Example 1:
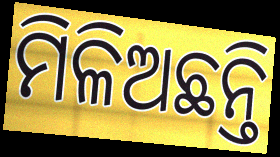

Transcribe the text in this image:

ମିଳିଅଛନ୍ତି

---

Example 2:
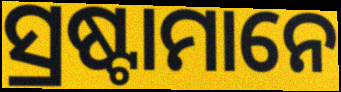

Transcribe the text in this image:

ସ୍ରଷ୍ଟାମାନେ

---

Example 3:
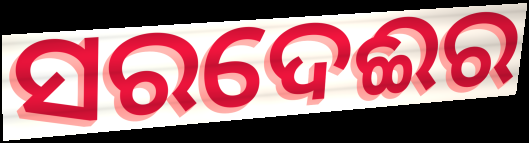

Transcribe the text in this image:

ସରଦେଈର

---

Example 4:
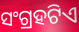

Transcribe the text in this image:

ସଂଗ୍ରହଟିଏ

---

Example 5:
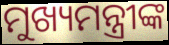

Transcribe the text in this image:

ମୁଖ୍ୟମନ୍ତ୍ରୀଙ୍କ